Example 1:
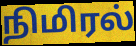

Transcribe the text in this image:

நிமிரல்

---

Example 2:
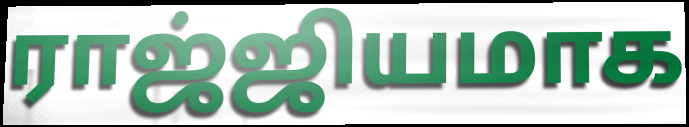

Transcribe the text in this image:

ராஜ்ஜியமாக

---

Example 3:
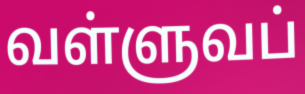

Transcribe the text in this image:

வள்ளுவப்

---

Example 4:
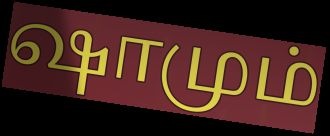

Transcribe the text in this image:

ஷாமும்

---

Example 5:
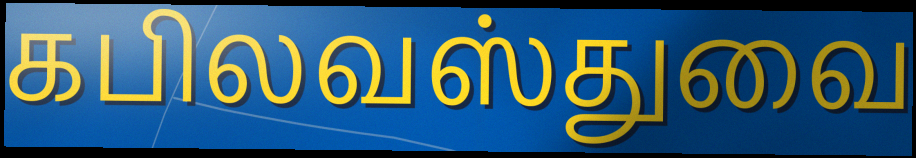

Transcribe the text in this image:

கபிலவஸ்துவை